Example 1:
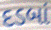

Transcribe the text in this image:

દડબાં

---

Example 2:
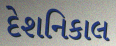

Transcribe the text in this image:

દેશનિકાલ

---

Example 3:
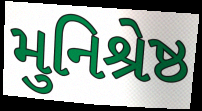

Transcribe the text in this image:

મુનિશ્રેષ્ઠ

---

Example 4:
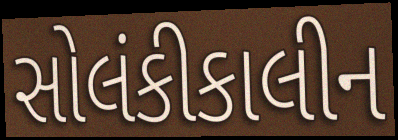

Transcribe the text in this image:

સોલંકીકાલીન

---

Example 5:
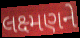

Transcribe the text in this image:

લક્ષ્મણને